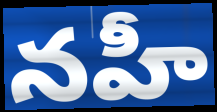
నహీ